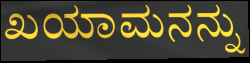
ಖಯಾಮನನ್ನು